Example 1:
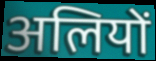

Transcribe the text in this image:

अलियों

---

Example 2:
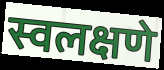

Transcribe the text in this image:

स्वलक्षणे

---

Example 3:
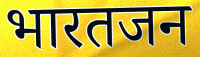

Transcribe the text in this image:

भारतजन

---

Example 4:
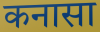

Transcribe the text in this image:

कनासा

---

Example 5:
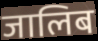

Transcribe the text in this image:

जालिब